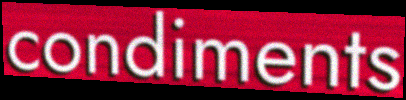
condiments